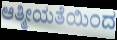
ಆತ್ಮೀಯತೆಯಿಂದ